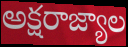
అక్షరాజ్యాల